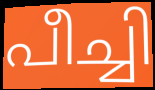
പീച്ചി